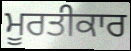
ਮੂਰਤੀਕਾਰ